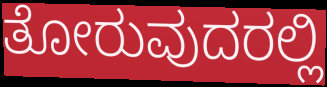
ತೋರುವುದರಲ್ಲಿ